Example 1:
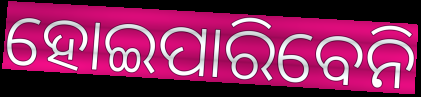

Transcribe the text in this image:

ହୋଇପାରିବେନି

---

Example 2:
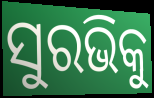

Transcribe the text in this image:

ସୁରଭିକୁ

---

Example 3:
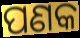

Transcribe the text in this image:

ପଣକ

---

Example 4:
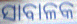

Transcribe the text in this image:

ସାବାଳକ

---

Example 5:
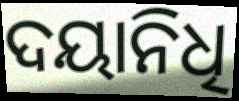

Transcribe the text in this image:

ଦୟାନିଧି